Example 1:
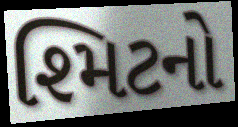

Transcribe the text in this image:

શ્મિટનો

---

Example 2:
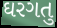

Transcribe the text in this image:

ઘરગતુ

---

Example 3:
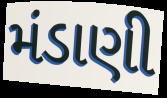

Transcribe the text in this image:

મંડાણી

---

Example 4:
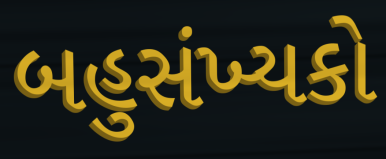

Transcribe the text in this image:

બહુસંખ્યકો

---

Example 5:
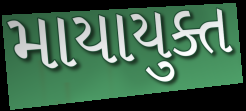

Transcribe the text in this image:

માયાયુક્ત